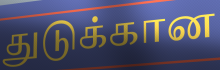
துடுக்கான